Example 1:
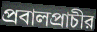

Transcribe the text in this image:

প্রবালপ্রাচীর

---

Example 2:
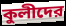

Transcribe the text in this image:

কুলীদের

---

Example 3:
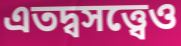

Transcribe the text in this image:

এতদ্বসত্ত্বেও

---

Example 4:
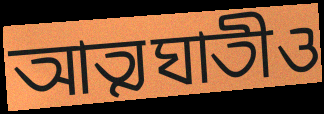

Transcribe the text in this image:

আত্মঘাতীও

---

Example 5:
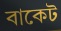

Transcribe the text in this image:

বাকেট